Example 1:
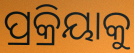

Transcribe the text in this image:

ପ୍ରକ୍ରିୟାକୁ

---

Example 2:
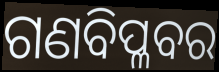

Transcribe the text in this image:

ଗଣବିପ୍ଳବର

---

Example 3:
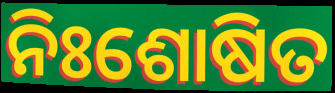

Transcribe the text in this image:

ନିଃଶୋଷିତ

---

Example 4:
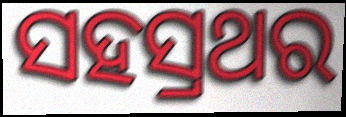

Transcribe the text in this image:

ସହସ୍ରଥର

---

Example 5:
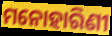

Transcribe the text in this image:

ମନୋହାରିଣୀ